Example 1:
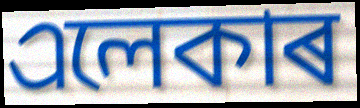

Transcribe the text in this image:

এলেকাৰ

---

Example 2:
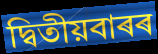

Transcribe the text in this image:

দ্বিতীয়বাৰৰ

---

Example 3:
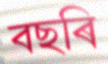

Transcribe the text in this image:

বছৰি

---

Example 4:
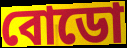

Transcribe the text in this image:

বোডো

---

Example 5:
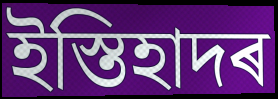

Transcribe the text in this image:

ইস্তিহাদৰ